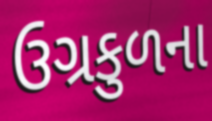
ઉગ્રકુળના